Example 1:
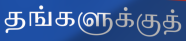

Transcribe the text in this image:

தங்களுக்குத்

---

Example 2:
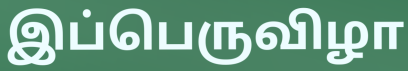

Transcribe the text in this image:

இப்பெருவிழா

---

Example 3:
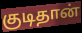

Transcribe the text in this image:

குடிதான்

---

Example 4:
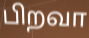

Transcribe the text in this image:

பிறவா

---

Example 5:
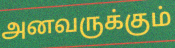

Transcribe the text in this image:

அனவருக்கும்